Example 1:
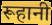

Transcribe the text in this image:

रूहानी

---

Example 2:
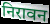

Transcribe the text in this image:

निरावन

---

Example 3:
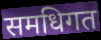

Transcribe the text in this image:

समधिगत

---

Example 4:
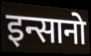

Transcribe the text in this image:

इन्सानो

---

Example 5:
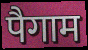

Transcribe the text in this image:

पैगाम